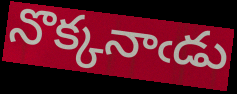
నొక్కనాఁడు